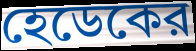
হেডেকের